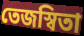
তেজস্বিতা